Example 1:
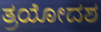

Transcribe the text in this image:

ತ್ರಯೋದಶ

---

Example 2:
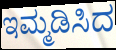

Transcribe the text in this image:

ಇಮ್ಮಡಿಸಿದ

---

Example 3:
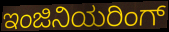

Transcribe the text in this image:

ಇಂಜಿನಿಯರಿಂಗ್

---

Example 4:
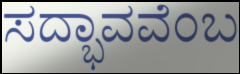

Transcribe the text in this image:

ಸದ್ಭಾವವೆಂಬ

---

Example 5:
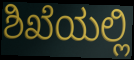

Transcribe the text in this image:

ಶಿಖೆಯಲ್ಲಿ